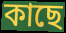
কাছে